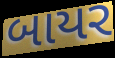
બાયર